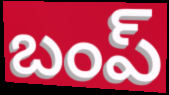
బంప్